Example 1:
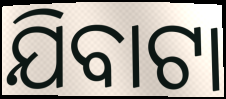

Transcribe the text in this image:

ଯିବାଟା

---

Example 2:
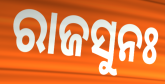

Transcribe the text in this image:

ରାଜସୁନଃ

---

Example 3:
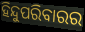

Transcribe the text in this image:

ହିନ୍ଦୁପରିବାରର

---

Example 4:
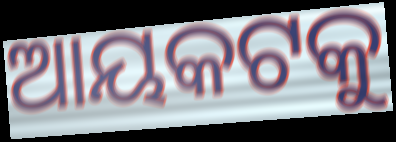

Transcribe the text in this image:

ଆୟକଟକୁ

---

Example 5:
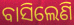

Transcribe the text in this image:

ବାସିଲେଣି